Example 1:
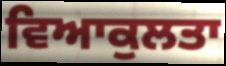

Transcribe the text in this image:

ਵਿਆਕੁਲਤਾ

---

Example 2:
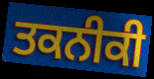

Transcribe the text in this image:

ਤਕਨੀਕੀ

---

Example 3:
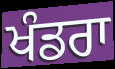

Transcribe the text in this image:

ਖੰਡਰਾ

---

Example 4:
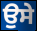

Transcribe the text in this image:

ਉਸੇ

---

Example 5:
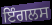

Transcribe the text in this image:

ਇੰਗਲਸ